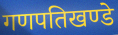
गणपतिखण्डे